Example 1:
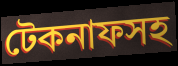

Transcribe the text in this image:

টেকনাফসহ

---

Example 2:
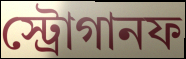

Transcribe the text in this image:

স্ট্রোগানফ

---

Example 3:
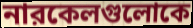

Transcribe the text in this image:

নারকেলগুলোকে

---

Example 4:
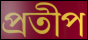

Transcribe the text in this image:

প্রতীপ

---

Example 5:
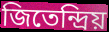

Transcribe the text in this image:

জিতেন্দ্রিয়